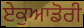
ਏਕੁਆਡੋਰੀ